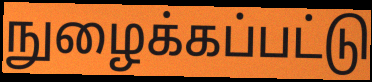
நுழைக்கப்பட்டு